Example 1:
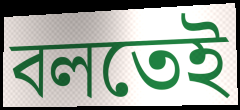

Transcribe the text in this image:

বলতেই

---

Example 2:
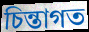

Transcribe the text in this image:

চিন্তাগত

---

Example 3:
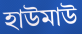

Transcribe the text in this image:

হাউমাউ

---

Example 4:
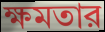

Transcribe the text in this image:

ক্ষমতার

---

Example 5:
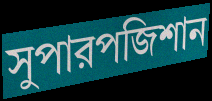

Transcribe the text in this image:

সুপারপজিশান